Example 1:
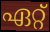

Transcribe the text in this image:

ഏറ്റ്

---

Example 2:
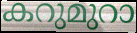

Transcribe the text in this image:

കറുമുറാ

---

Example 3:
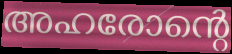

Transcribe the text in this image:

അഹരോന്റെ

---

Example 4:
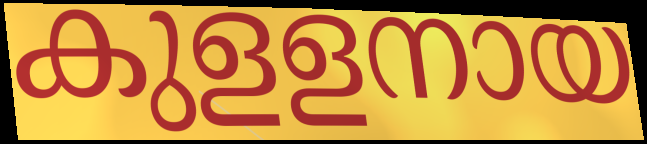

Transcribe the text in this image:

കുളളനായ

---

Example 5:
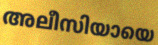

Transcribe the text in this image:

അലീസിയായെ